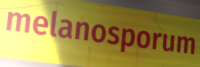
melanosporum